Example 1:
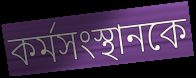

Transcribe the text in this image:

কর্মসংস্থানকে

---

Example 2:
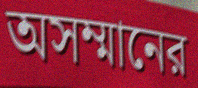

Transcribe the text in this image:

অসম্মানের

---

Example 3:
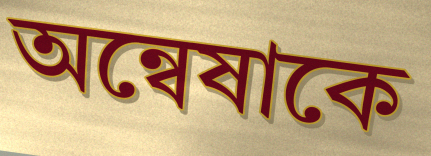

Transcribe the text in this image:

অন্বেষাকে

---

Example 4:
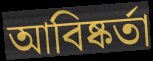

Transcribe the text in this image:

আবিষ্কর্তা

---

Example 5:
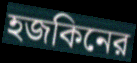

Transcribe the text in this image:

হজকিনের